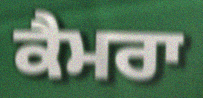
ਕੈਮਰਾ